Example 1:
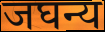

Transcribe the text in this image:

जघन्य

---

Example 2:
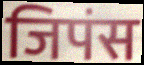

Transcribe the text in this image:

जिपंस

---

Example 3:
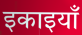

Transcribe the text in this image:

इकाइयाँ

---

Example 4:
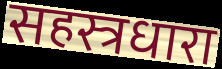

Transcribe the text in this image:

सहस्त्रधारा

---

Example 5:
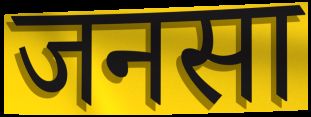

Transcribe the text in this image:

जनसा